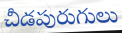
చీడపురుగులు